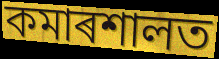
কমাৰশালত